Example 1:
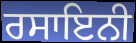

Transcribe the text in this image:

ਰਸਾਇਨੀ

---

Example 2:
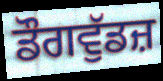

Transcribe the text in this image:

ਡੌਗਵੁੱਡਜ਼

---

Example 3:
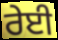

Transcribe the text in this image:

ਰੇਈ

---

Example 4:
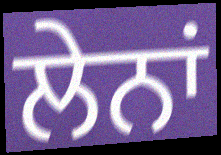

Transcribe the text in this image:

ਲੇਨਾਂ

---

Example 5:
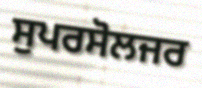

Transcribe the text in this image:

ਸੁਪਰਸੋਲਜਰ